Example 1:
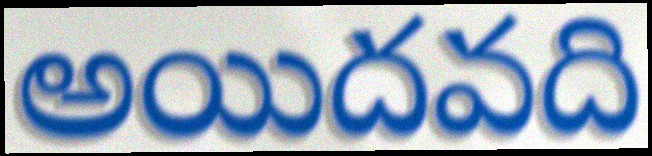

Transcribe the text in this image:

అయిదవది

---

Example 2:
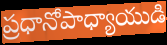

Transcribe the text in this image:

ప్రధానోపాధ్యాయుడి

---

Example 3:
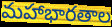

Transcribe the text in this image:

మహాభారతాల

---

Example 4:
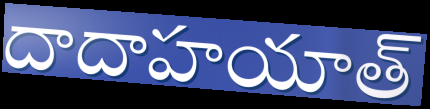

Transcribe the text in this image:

దాదాహయాత్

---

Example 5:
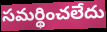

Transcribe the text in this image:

సమర్థించలేదు